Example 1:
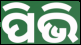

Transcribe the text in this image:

ପିଭି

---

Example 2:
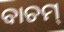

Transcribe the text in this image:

ବାଚମ୍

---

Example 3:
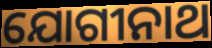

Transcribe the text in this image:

ଯୋଗୀନାଥ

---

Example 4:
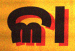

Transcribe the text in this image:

ଳା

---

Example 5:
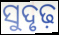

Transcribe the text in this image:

ସୁଦୃଢ଼